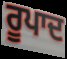
ਰੂਪਾਦ